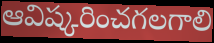
ఆవిష్కరించగలగాలి